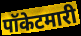
पॉकेटमारी